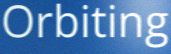
Orbiting